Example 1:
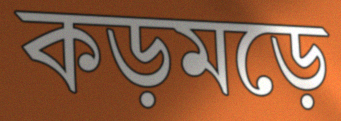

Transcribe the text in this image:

কড়মড়ে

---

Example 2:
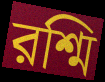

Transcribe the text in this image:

রশ্মি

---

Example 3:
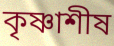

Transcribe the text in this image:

কৃষ্ণাশীষ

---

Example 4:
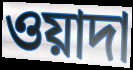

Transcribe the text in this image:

ওয়াদা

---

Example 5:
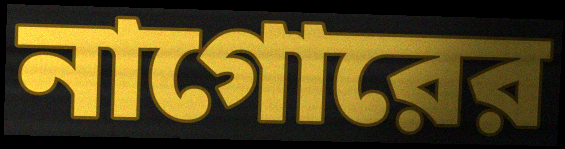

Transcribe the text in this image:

নাগোরের